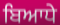
ਬਿਆਧੇ